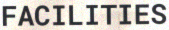
FACILITIES